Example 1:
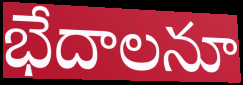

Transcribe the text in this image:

భేదాలనూ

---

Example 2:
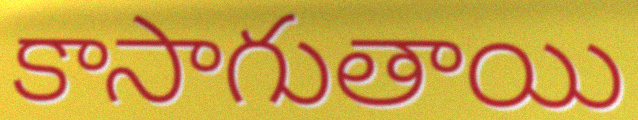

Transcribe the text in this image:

కాసాగుతాయి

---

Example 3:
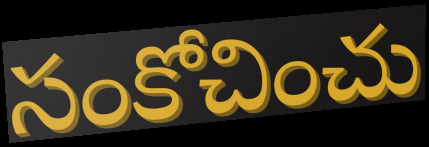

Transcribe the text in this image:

సంకోచించు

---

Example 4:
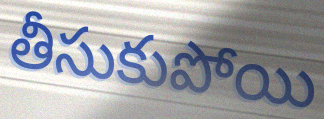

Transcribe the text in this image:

తీసుకుపోయి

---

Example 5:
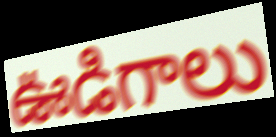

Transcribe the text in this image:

ఊడిగాలు